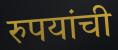
रुपयांची